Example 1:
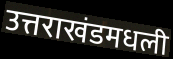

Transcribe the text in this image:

उत्तराखंडमधली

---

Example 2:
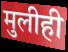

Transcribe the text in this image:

मुलीही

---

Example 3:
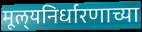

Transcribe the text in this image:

मूल्यनिर्धारणाच्या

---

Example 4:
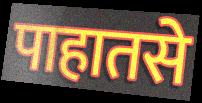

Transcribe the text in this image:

पाहातसे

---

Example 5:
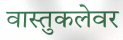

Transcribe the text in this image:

वास्तुकलेवर